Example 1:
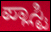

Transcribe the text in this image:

ಪ್ಲಾಸ್ಟಿ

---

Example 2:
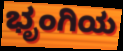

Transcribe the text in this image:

ಭೃಂಗಿಯ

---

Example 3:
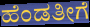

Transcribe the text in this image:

ಹೆಂಡತೀಗೆ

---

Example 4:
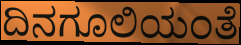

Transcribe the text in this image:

ದಿನಗೂಲಿಯಂತೆ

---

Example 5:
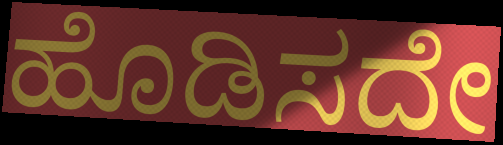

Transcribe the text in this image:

ಹೊಡಿಸದೇ